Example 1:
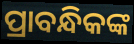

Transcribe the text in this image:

ପ୍ରାବନ୍ଧିକଙ୍କ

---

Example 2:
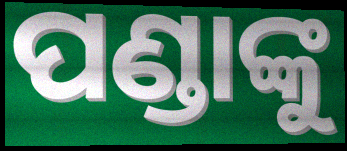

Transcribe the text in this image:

ପଣ୍ଡାଙ୍କୁ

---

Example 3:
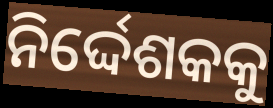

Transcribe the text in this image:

ନିର୍ଦ୍ଦେଶକକୁ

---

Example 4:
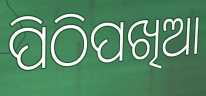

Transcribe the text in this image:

ପିଠିପଖିଆ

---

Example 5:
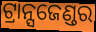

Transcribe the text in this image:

ଟ୍ରାନ୍ସଜେଣ୍ଡର